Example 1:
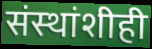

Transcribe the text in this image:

संस्थांशीही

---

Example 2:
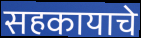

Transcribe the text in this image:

सहकायाचे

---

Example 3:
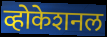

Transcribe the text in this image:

व्होकेशनल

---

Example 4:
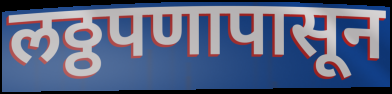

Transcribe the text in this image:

लठ्ठपणापासून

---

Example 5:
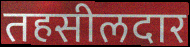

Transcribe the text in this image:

तहसीलदार